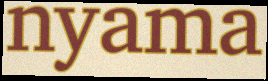
nyama